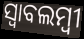
ସ୍ଵାବଲମ୍ଵୀ